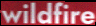
wildfire